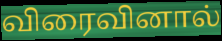
விரைவினால்